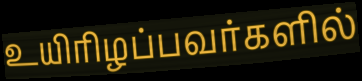
உயிரிழப்பவர்களில்